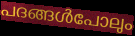
പദങ്ങൾപോലും